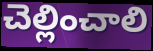
చెల్లించాలి